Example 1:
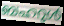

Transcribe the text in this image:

ബഹറുൾ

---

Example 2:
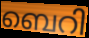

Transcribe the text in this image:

ബെറി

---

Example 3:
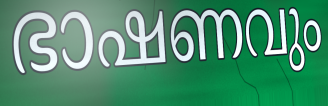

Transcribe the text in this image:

ഭാഷണവും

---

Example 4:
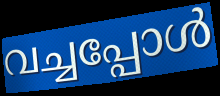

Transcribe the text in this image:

വച്ചപ്പോൾ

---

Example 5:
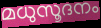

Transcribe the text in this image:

മധുസൂദനം